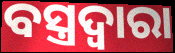
ବସ୍ତ୍ରଦ୍ୱାରା